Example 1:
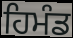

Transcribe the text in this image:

ਹਿਮੰਡ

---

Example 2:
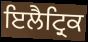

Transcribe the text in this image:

ਇਲੈਟ੍ਰਿਕ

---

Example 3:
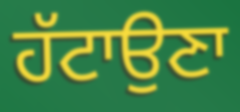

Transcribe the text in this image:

ਹੱਟਾਉਣਾ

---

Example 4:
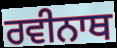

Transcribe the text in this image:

ਰਵੀਨਾਥ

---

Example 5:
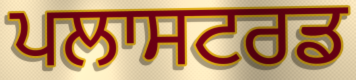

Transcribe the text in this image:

ਪਲਾਸਟਰਡ